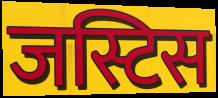
जस्टिस